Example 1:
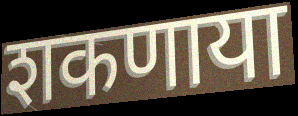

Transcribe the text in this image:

शकणाया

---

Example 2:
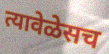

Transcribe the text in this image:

त्यावेळेसच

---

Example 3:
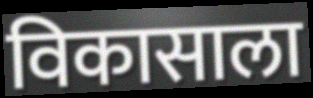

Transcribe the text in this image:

विकासाला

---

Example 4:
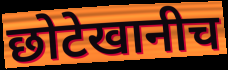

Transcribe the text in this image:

छोटेखानीच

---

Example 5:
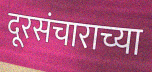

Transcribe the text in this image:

दूरसंचाराच्या